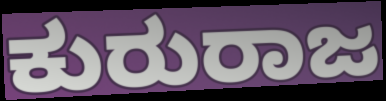
ಕುರುರಾಜ